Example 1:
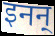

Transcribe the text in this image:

इनन्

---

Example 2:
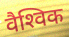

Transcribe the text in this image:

वैश्‍विक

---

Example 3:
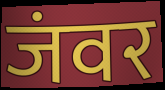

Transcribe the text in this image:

जंवर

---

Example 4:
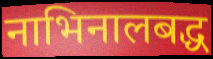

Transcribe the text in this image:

नाभिनालबद्ध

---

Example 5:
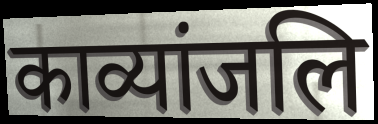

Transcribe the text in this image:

काव्यांजलि